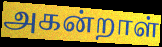
அகன்றாள்